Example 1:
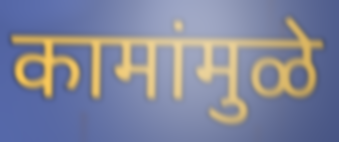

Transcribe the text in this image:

कामांमुळे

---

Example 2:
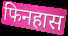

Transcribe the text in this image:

फिनहास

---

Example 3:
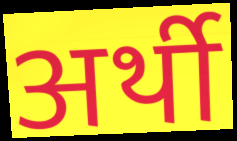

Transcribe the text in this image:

अर्थी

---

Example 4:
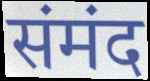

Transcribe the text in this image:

संमंद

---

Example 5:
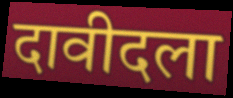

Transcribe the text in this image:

दावीदला